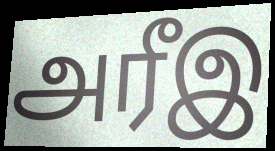
அரீஇ